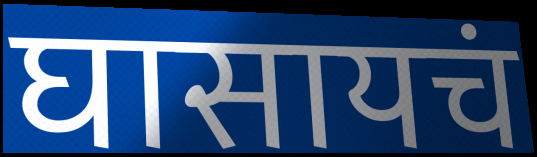
घासायचं